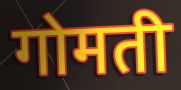
गोमती